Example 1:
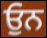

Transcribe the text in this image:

ਓੁਨ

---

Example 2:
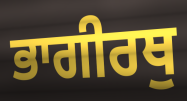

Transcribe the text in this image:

ਭਾਗੀਰਥੁ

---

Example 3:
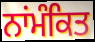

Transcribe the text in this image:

ਨਾਂਮੰਕਿਤ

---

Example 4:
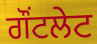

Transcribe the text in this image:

ਗੌਂਟਲੇਟ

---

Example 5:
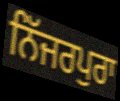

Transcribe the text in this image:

ਨਿੱਜਰਪੁਰਾ